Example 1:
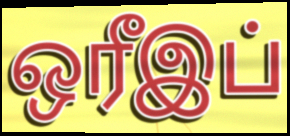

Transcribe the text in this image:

ஒரீஇப்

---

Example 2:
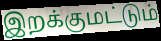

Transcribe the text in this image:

இறக்குமட்டும்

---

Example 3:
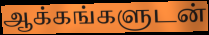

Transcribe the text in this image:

ஆக்கங்களுடன்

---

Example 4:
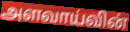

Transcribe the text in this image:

அளவாய்வின்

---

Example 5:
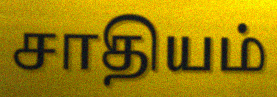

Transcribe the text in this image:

சாதியம்